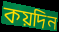
কয়দিন